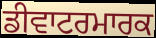
ਡੀਵਾਟਰਮਾਰਕ